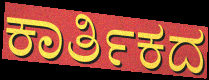
ಕಾರ್ತಿಕದ